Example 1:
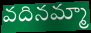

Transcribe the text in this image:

వదినమ్మా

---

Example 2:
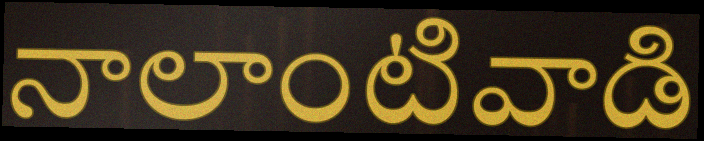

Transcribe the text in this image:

నాలాంటివాడి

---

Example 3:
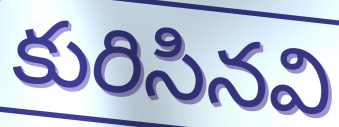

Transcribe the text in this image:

కురిసినవి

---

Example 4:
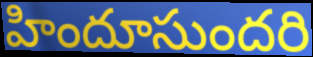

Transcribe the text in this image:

హిందూసుందరి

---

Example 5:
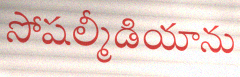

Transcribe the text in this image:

సోషల్మీడియాను